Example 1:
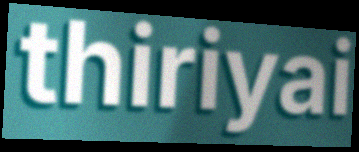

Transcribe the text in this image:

thiriyai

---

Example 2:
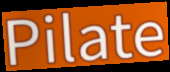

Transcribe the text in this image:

Pilate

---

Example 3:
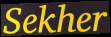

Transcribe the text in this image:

Sekher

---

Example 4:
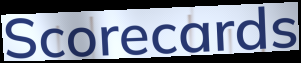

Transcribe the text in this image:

Scorecards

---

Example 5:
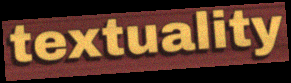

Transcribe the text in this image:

textuality